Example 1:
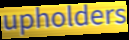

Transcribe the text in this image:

upholders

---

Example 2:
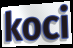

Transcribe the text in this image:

koci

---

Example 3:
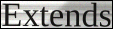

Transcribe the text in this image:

Extends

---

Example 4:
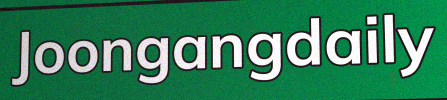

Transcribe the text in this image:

Joongangdaily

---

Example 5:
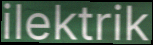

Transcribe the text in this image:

ilektrik